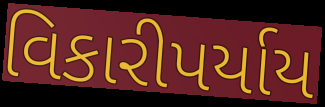
વિકારીપર્યાય